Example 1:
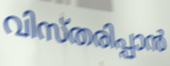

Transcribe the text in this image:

വിസ്തരിപ്പാൻ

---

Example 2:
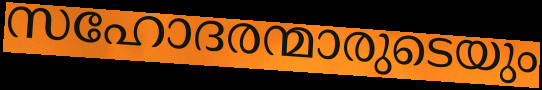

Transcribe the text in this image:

സഹോദരന്മാരുടെയും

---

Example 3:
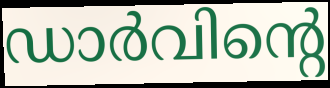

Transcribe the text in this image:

ഡാർവിന്റെ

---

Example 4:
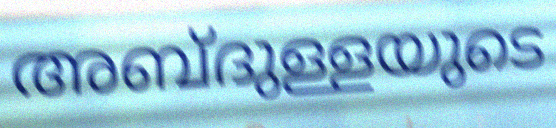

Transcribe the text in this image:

അബ്ദുള്ളയുടെ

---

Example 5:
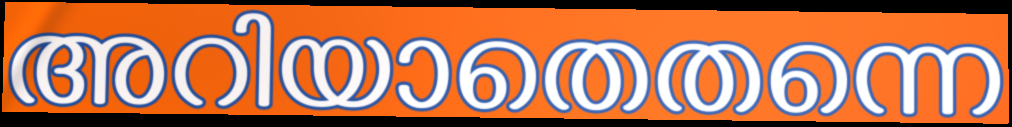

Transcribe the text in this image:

അറിയാതെതന്നെ